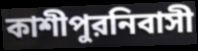
কাশীপুরনিবাসী